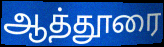
ஆத்தூரை